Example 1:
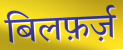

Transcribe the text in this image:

बिलफ़र्ज़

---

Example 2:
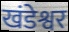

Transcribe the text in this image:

खंडेश्वर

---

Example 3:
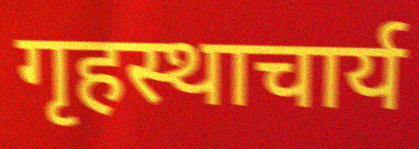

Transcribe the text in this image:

गृहस्थाचार्य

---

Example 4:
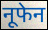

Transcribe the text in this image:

नूफेन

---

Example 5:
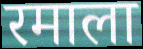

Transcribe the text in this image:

रमाला